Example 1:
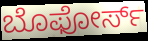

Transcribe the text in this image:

ಬೊಫೋರ್ಸ್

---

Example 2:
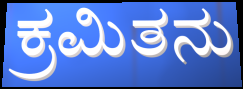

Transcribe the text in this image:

ಕ್ರಮಿತನು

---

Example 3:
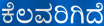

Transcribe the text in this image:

ಕೆಲವರಿಗಿದೆ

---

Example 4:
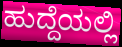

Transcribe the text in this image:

ಹುದ್ದೆಯಲ್ಲಿ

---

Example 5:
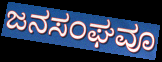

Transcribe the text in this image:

ಜನಸಂಘವೂ